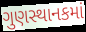
ગુણસ્થાનકમાં